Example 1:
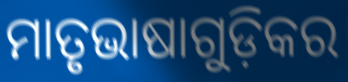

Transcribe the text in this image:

ମାତୃଭାଷାଗୁଡ଼ିକର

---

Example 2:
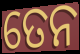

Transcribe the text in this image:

ତେନ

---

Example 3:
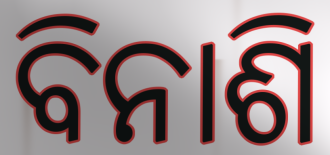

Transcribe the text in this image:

ବିନାଶି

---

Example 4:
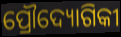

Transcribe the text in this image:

ପ୍ରୌଦ୍ୟୋଗିକୀ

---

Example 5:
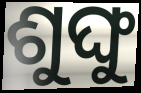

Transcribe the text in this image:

ଶୁଙ୍ଘୁ